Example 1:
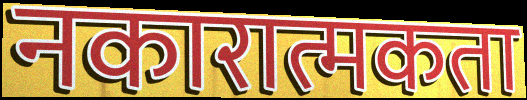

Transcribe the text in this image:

नकारात्मकता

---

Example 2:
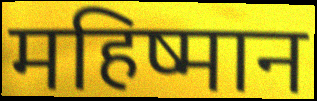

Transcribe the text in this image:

महिष्मान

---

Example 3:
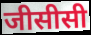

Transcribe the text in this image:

जीसीसी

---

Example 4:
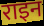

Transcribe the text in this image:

राइन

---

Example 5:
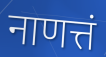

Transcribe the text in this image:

नाणत्तं